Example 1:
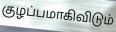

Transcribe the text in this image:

குழப்பமாகிவிடும்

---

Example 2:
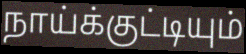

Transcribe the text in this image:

நாய்க்குட்டியும்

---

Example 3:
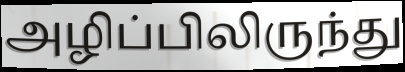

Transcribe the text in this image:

அழிப்பிலிருந்து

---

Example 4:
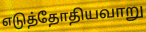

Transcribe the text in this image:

எடுத்தோதியவாறு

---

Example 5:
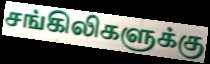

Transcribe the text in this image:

சங்கிலிகளுக்கு